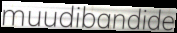
muudibandide